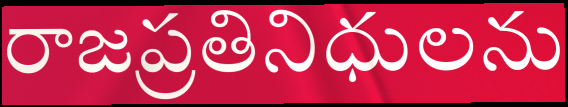
రాజప్రతినిధులను